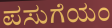
ಪಸುಗೆಯಂ